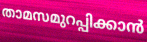
താമസമുറപ്പിക്കാൻ